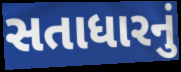
સતાધારનું